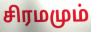
சிரமமும்